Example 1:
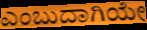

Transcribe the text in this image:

ಎಂಬುದಾಗಿಯೇ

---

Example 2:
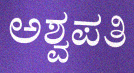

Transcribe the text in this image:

ಅಶ್ವಪತಿ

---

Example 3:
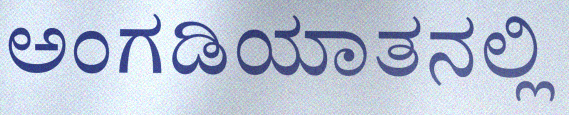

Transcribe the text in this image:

ಅಂಗಡಿಯಾತನಲ್ಲಿ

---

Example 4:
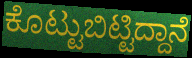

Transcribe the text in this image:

ಕೊಟ್ಟುಬಿಟ್ಟಿದ್ದಾನೆ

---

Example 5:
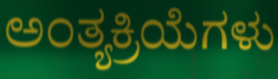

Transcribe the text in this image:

ಅಂತ್ಯಕ್ರಿಯೆಗಳು